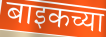
बाइकच्या